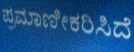
ಪ್ರಮಾಣೀಕರಿಸಿದೆ